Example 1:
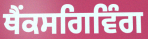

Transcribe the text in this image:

ਥੈਂਕਸਗਿਵਿੰਗ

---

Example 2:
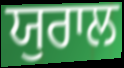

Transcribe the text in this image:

ਯੁਰਾਲ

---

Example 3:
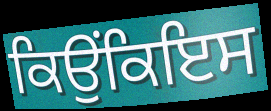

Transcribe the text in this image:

ਕਿਉਂਕਿਇਸ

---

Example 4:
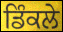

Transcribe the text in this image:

ਡਿੰਕਲੇ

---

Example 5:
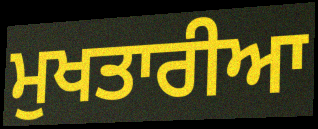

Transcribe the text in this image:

ਮੁਖਤਾਰੀਆ